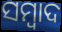
ସମ୍ବାଦ